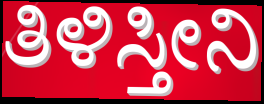
ತಿಳಿಸ್ತೀನಿ